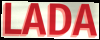
LADA